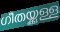
ഗീതയ്ക്കുള്ള